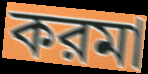
করমা